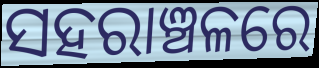
ସହରାଞ୍ଚଳରେ